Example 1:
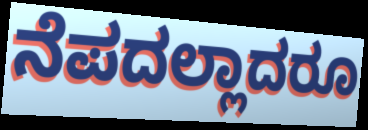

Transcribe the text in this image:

ನೆಪದಲ್ಲಾದರೂ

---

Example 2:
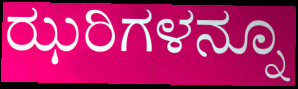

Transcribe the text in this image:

ಝರಿಗಳನ್ನೂ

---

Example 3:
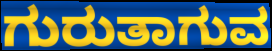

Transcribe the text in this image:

ಗುರುತಾಗುವ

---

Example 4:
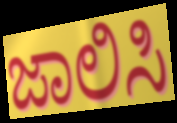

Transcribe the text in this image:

ಜಾಲಿಸಿ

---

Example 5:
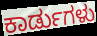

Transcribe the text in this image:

ಕಾರ್ಡುಗಳು